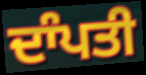
ਦਾੰਪਤੀ